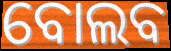
ବୋଲବ